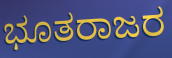
ಭೂತರಾಜರ